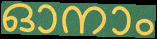
ഓനാം